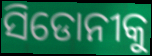
ସିଡୋନୀକୁ